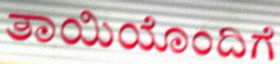
ತಾಯಿಯೊಂದಿಗೆ